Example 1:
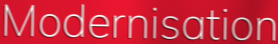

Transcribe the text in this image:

Modernisation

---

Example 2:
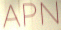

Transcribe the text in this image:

APN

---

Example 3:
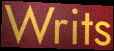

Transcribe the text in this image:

Writs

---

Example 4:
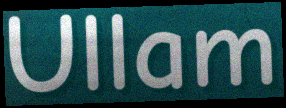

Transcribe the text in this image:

Ullam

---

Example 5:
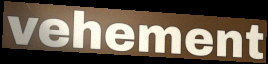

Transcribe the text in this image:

vehement